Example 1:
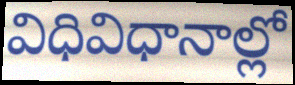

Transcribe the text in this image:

విధివిధానాల్లో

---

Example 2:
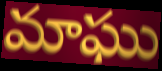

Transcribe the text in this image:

మాఘు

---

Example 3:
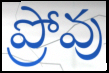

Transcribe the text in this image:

ప్రోవు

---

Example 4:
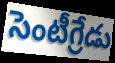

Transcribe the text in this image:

సెంటీగ్రేడు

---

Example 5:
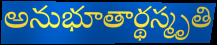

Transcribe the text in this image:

అనుభూతార్థస్మృతి